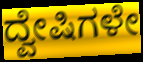
ದ್ವೇಷಿಗಳೇ